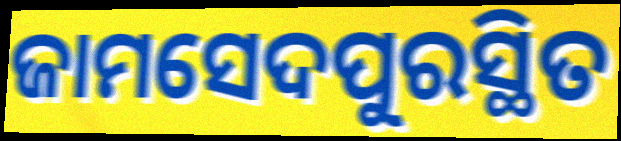
ଜାମସେଦପୁରସ୍ଥିତ